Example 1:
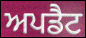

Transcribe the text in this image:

ਅਪਡੈਟ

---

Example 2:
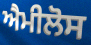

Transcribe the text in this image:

ਐਮੀਲੋਸ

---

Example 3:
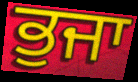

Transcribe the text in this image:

ਭੁਜਾ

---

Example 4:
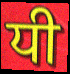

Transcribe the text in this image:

ਧੀ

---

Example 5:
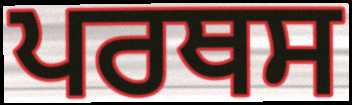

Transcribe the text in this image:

ਪਰਥਸ